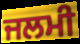
ਜਲਮੀ